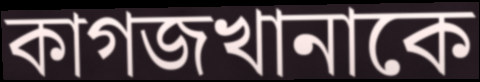
কাগজখানাকে